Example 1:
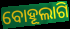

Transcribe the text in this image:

ବୋହୂଲାଗି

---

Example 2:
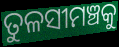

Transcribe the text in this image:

ତୁଳସୀମଞ୍ଚକୁ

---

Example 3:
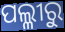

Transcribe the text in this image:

ପଲ୍ଳୀରୁ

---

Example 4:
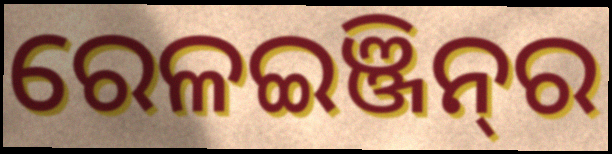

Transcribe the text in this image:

ରେଳଇଞ୍ଜିନ୍‌ର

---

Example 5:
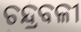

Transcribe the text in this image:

ଚନ୍ଦ୍ରବଳୀ